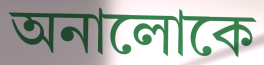
অনালোকে